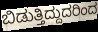
ಬಿಡುತ್ತಿದ್ದುದರಿಂದ